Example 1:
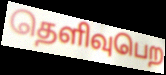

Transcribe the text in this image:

தெளிவுபெற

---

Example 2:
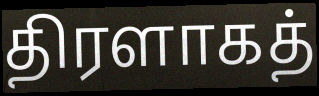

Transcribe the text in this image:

திரளாகத்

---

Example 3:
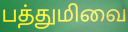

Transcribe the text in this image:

பத்துமிவை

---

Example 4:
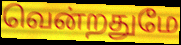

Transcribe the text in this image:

வென்றதுமே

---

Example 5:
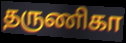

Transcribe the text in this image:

தருணிகா